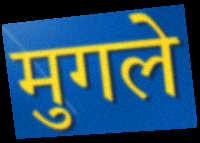
मुगले